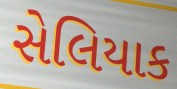
સેલિયાક